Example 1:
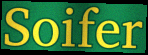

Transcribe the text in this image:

Soifer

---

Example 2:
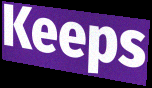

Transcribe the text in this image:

Keeps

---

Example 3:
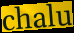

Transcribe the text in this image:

chalu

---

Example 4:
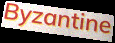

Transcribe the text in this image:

Byzantine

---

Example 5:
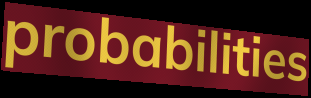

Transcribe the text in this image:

probabilities